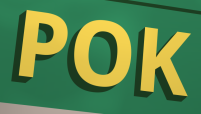
POK